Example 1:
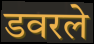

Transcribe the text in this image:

डवरले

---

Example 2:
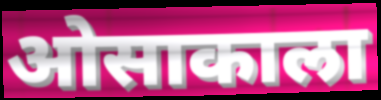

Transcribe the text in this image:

ओसाकाला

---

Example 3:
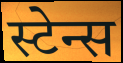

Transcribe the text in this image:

स्टेन्स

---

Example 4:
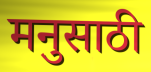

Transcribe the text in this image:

मनुसाठी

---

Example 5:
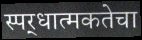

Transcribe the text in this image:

स्पर्धात्मकतेचा